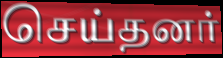
செய்தனர்